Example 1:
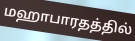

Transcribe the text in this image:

மஹாபாரதத்தில்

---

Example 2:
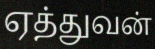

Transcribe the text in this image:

ஏத்துவன்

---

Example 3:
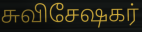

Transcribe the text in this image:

சுவிசேஷகர்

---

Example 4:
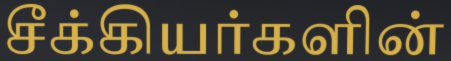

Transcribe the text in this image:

சீக்கியர்களின்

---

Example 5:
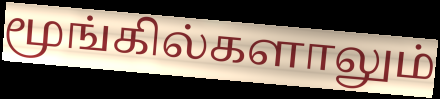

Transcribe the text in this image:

மூங்கில்களாலும்